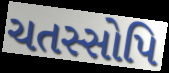
ચતસ્સોપિ